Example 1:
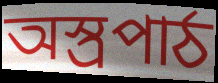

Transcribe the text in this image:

অস্ত্রপাঠ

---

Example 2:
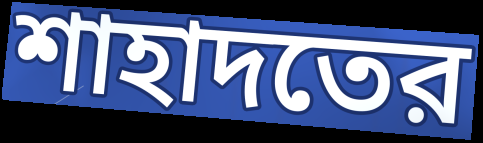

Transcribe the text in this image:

শাহাদতের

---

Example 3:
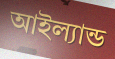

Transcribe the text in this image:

আইল্যান্ড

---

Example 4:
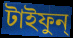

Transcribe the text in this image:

টাইফুন্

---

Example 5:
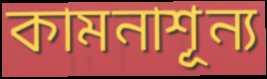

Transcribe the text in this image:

কামনাশূন্য